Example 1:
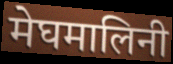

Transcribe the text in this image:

मेघमालिनी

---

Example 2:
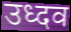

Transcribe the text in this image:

उध्दव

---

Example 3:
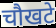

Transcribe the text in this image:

चौखटे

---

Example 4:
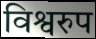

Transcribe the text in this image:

विश्वरुप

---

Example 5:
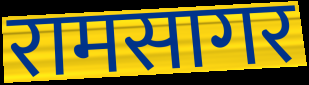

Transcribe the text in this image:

रामसागर